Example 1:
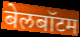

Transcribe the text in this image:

बेलबॉटम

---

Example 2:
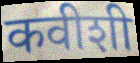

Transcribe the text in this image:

कवीशी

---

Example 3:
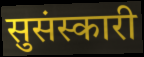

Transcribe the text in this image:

सुसंस्कारी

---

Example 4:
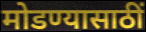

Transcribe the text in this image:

मोडण्यासाठीं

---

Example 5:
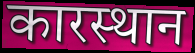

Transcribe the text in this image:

कारस्थान